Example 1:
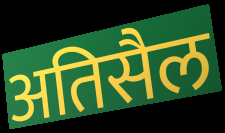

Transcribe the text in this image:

अतिसैल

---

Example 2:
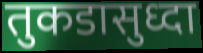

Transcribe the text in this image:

तुकडासुध्दा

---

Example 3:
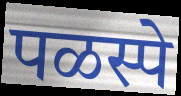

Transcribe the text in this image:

पळस्पे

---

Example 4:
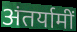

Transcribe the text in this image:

अंतर्यामीं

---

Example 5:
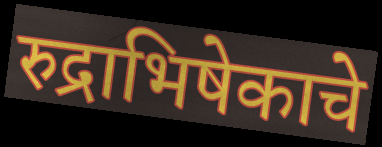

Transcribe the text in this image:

रुद्राभिषेकाचे